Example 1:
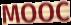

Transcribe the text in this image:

MOOC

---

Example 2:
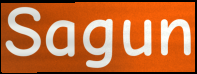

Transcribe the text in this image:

Sagun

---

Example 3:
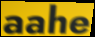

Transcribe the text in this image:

aahe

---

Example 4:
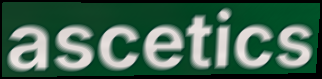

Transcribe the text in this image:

ascetics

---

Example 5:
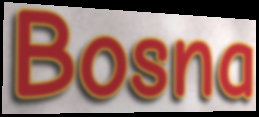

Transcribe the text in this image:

Bosna